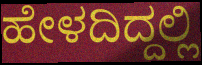
ಹೇಳದಿದ್ದಲ್ಲಿ